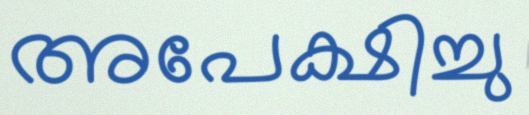
അപേക്ഷിച്ചു